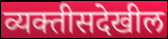
व्यक्तीसदेखील